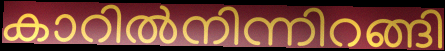
കാറിൽനിന്നിറങ്ങി